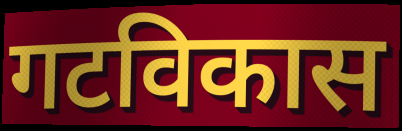
गटविकास